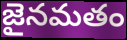
జైనమతం